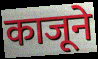
काजूने